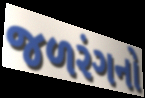
જળરંગનો